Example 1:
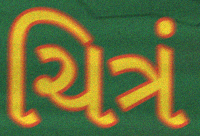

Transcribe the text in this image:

ચિત્રં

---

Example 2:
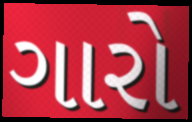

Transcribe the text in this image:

ગારો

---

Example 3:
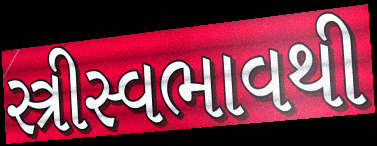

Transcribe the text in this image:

સ્ત્રીસ્વભાવથી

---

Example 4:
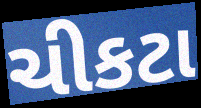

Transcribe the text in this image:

ચીકટા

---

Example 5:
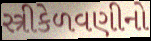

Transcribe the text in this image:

સ્ત્રીકેળવણીનો